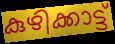
കുഴിക്കാട്ട്